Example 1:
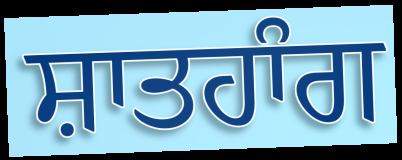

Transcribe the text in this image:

ਸ਼ਾਤਹਾੰਗ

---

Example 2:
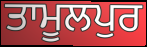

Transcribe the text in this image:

ਤਾਮੂਲਪੁਰ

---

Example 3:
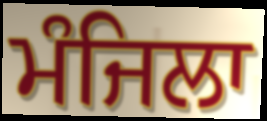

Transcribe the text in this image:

ਮੰਜਿਲਾ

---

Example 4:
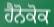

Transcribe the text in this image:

ਹੈਨੋਕੋਕ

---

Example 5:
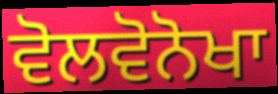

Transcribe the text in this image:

ਵੋਲਵੋਨੋਖਾ